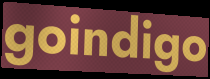
goindigo